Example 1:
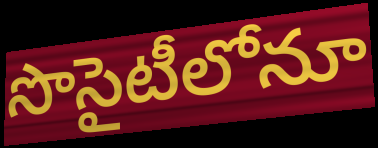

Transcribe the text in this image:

సొసైటీలోనూ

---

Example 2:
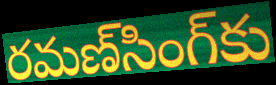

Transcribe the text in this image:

రమణ్‌సింగ్‌కు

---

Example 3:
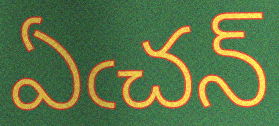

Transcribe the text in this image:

ఏఁచన్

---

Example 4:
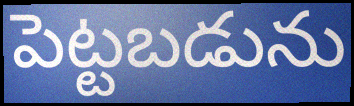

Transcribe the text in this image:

పెట్టబడును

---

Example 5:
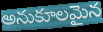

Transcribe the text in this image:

అనుకూలమైన